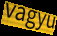
vagyu